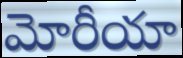
మోరీయా